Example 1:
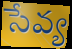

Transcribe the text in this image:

సేవ్య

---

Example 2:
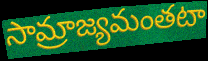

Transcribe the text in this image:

సామ్రాజ్యమంతటా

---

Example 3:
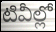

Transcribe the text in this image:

టివీల్లో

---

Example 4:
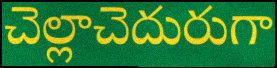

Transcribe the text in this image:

చెల్లాచెదురుగా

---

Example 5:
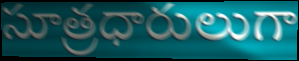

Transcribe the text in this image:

సూత్రధారులుగా